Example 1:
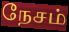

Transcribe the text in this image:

நேசம்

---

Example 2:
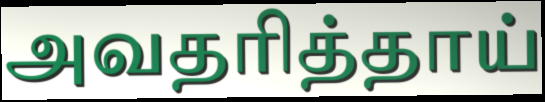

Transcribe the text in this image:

அவதரித்தாய்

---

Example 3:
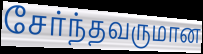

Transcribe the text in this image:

சேர்ந்தவருமான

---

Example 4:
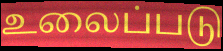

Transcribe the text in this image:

உலைப்படு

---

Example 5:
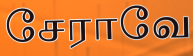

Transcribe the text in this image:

சேராவே